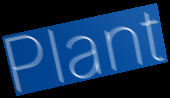
Plant